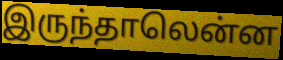
இருந்தாலென்ன